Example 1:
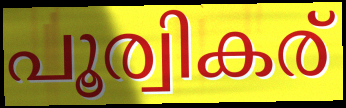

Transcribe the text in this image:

പൂര്വികര്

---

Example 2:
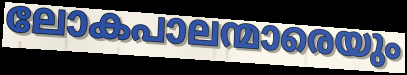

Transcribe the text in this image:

ലോകപാലന്മാരെയും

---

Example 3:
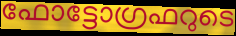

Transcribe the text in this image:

ഫോട്ടോഗ്രഫറുടെ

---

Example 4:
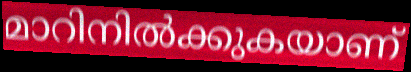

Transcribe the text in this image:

മാറിനിൽക്കുകയാണ്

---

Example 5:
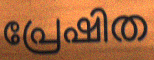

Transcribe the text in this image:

പ്രേഷിത